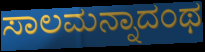
ಸಾಲಮನ್ನಾದಂಥ